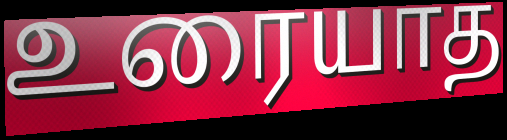
உரையாத